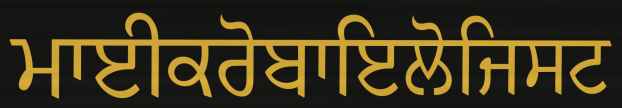
ਮਾਈਕਰੋਬਾਇਲੋਜਿਸਟ